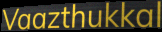
Vaazthukkal